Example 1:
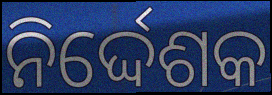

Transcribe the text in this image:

ନିର୍ଦ୍ଦେଶକ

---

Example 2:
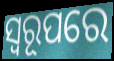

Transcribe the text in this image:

ସ୍ଵରୂପରେ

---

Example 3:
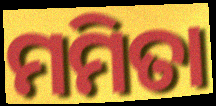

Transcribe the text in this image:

ମମିତା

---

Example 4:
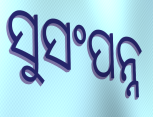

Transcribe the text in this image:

ସୁସଂପନ୍ନ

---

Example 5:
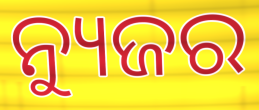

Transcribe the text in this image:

ନ୍ୟୁଜର